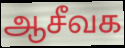
ஆசீவக